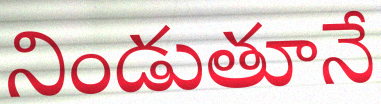
నిండుతూనే